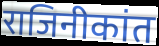
राजिनीकांत